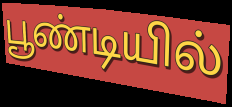
பூண்டியில்